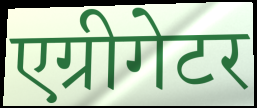
एग्रीगेटर